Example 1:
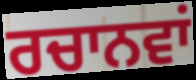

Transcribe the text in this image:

ਰਚਾਨਵਾਂ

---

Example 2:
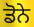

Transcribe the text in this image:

ਡੋਨੇ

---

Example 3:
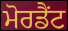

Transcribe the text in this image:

ਮੋਰਡੈਂਟ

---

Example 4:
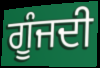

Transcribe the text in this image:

ਗੂੰਜਦੀ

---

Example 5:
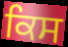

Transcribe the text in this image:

ਕਿਸ